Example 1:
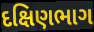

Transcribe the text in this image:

દક્ષિણભાગ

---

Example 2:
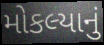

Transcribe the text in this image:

મોકલ્યાનું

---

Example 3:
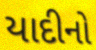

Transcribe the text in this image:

યાદીનો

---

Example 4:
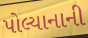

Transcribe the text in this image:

પોલ્યાનાની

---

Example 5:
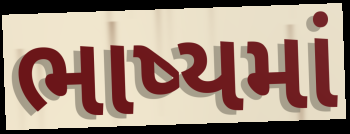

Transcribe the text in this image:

ભાષ્યમાં